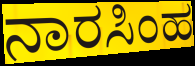
ನಾರಸಿಂಹ